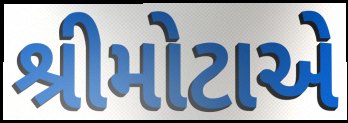
શ્રીમોટાએ